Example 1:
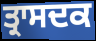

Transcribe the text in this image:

ਤ੍ਰਾਸਦਕ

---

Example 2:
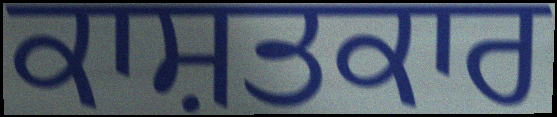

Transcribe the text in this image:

ਕਾਸ਼ਤਕਾਰ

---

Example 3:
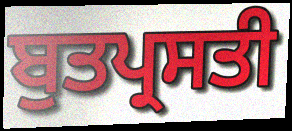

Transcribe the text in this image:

ਬੁਤਪ੍ਰਸਤੀ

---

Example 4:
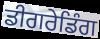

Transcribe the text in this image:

ਡੀਗਰੇਡਿੰਗ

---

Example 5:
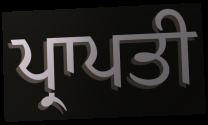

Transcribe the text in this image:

ਪ੍ਰਾਪਤੀ